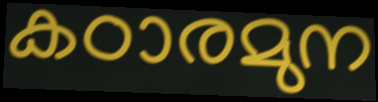
കഠാരമുന